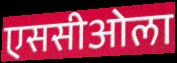
एससीओला